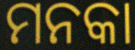
ମନକା